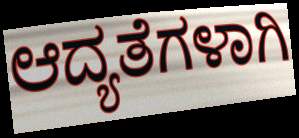
ಆದ್ಯತೆಗಳಾಗಿ